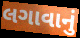
લગાવાનું